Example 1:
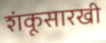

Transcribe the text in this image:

शंकूसारखी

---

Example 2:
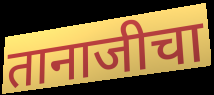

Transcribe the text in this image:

तानाजीचा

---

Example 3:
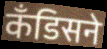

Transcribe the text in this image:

कँडिसने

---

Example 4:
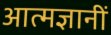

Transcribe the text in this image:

आत्मज्ञानीं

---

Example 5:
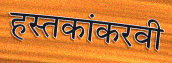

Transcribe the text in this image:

हस्तकांकरवी